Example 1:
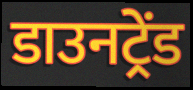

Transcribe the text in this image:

डाउनट्रेंड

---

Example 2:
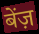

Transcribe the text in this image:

बेंज़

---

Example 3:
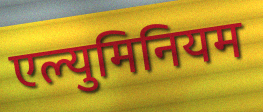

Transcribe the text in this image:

एल्युमिनियम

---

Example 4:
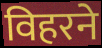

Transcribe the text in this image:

विहरने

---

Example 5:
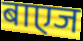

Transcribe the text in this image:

बाएज